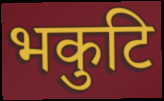
भकुटि